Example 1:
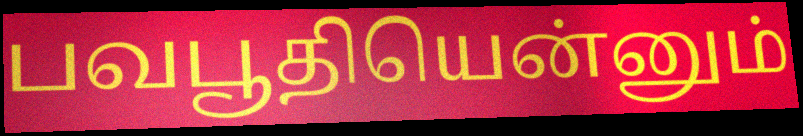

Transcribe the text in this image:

பவபூதியென்னும்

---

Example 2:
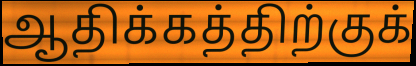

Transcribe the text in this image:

ஆதிக்கத்திற்குக்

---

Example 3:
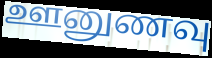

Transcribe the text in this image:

ஊனுணவு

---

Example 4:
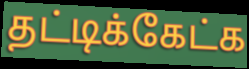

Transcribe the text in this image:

தட்டிக்கேட்க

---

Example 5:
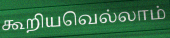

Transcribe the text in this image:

கூறியவெல்லாம்